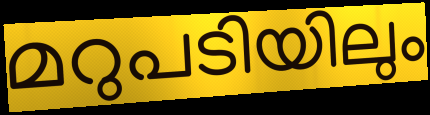
മറുപടിയിലും